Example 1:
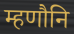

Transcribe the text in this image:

म्हणौनि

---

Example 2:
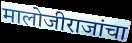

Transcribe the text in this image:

मालोजीराजांचा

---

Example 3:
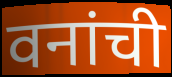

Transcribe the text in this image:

वनांची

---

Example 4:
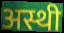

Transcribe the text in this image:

अस्थी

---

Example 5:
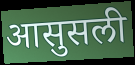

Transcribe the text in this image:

आसुसली